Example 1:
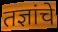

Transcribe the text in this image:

तज्ञांचे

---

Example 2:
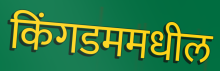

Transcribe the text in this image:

किंगडममधील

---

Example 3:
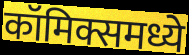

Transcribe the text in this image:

कॉमिक्समध्ये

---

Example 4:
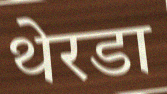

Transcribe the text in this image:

थेरडा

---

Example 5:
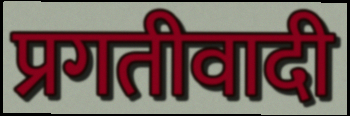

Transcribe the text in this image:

प्रगतीवादी